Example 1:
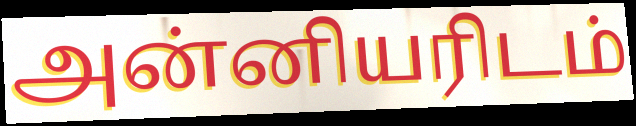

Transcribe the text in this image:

அன்னியரிடம்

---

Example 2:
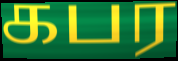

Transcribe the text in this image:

கபர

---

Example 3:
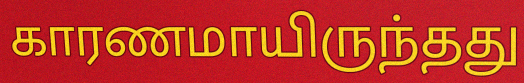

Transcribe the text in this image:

காரணமாயிருந்தது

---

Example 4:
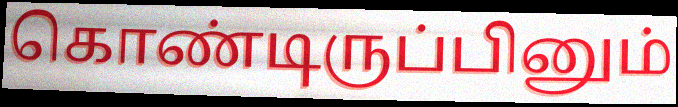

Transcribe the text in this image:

கொண்டிருப்பினும்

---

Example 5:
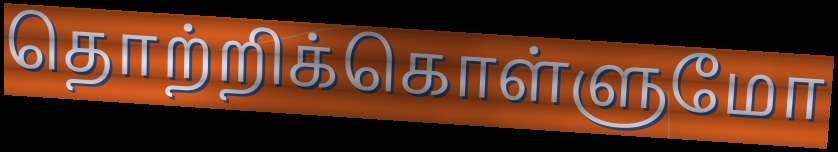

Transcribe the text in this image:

தொற்றிக்கொள்ளுமோ